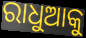
ରାଧୁଆକୁ